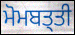
ਮੋਮਬਤ੍ਤੀ